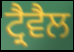
ਟ੍ਰੈਵੈਲ